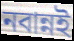
নবান্নই